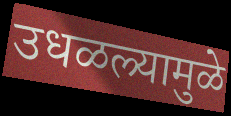
उधळल्यामुळे